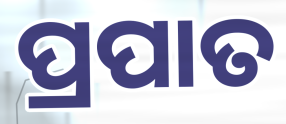
ପ୍ରପାତ